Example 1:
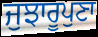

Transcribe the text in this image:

ਜੁਝਾਰੂਪੁਣਾ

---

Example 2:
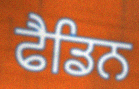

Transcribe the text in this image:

ਫੈਡਿਨ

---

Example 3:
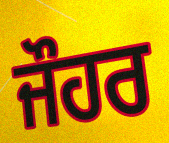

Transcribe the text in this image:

ਜੌਹਰ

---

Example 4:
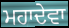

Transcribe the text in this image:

ਮਹਾਦੇਵਾ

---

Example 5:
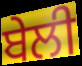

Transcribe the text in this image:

ਬੇਲੀ